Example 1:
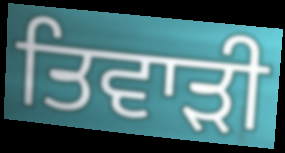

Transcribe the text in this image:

ਤਿਵਾੜੀ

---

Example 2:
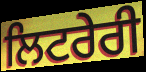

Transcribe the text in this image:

ਲਿਟਰੇਰੀ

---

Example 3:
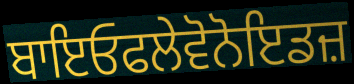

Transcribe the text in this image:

ਬਾਇਓਫਲੇਵੋਨੋਇਡਜ਼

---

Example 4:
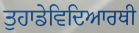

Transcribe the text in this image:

ਤੁਹਾਡੇਵਿਦਿਆਰਥੀ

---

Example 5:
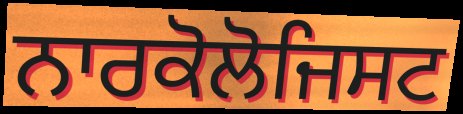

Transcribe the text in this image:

ਨਾਰਕੋਲੋਜਿਸਟ